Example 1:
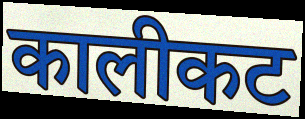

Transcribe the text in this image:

कालीकट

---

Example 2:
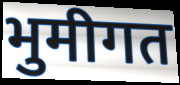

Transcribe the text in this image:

भुमीगत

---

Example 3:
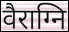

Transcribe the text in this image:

वैराग्नि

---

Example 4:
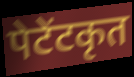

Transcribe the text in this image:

पेटेंटकृत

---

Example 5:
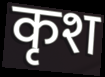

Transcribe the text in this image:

कृश